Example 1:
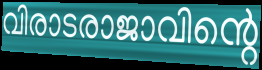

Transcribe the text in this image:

വിരാടരാജാവിന്റെ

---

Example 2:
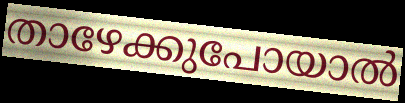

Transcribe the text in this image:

താഴേക്കുപോയാൽ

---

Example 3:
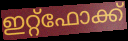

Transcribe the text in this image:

ഇറ്റ്ഫോക്ക്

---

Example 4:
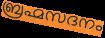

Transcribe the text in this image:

ബ്രഹ്മസദനം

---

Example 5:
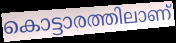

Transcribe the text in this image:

കൊട്ടാരത്തിലാണ്